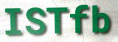
ISTfb